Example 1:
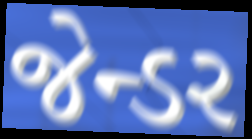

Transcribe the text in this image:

જેન્ડર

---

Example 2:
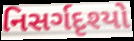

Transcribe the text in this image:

નિસર્ગદૃશ્યો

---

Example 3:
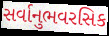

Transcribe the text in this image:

સર્વાનુભવરસિક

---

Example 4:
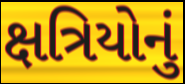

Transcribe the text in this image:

ક્ષત્રિયોનું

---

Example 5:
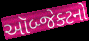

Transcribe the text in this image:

ઑબ્જેક્ટનો